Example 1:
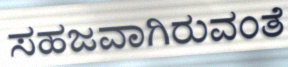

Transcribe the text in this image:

ಸಹಜವಾಗಿರುವಂತೆ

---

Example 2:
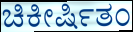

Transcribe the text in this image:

ಚಿಕೀರ್ಷಿತಂ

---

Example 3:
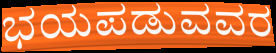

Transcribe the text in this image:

ಭಯಪಡುವವರ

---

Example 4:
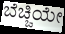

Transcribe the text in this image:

ಬೆಚ್ಚಿಯೇ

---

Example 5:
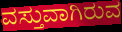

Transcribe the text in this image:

ವಸ್ತುವಾಗಿರುವ